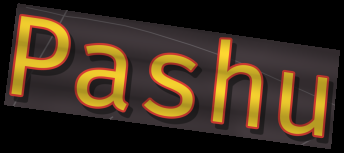
Pashu